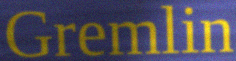
Gremlin